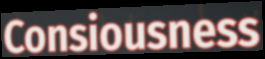
Consiousness